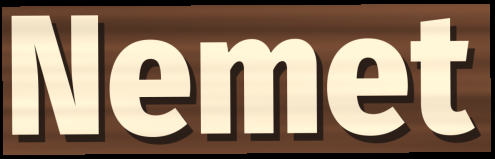
Nemet